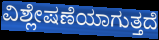
ವಿಶ್ಲೇಷಣೆಯಾಗುತ್ತದೆ